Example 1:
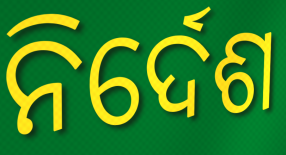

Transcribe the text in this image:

ନିର୍ଦେଶ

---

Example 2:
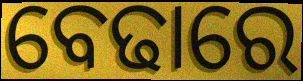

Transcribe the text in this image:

ବେଢାରେ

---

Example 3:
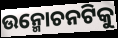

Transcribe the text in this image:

ଉନ୍ମୋଚନଟିକୁ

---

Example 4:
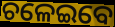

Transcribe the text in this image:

ଚଳେଇବେ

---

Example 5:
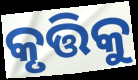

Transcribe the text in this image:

କୃତ୍ତିକୁ